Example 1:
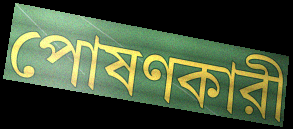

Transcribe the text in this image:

পোষণকারী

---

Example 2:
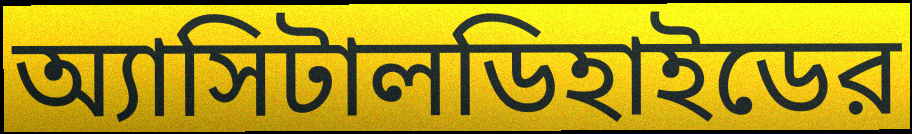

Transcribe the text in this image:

অ্যাসিটালডিহাইডের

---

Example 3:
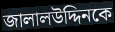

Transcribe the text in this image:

জালালউদ্দিনকে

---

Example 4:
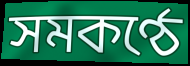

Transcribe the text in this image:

সমকণ্ঠে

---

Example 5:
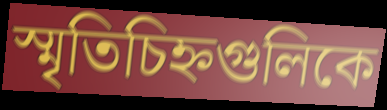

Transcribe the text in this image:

স্মৃতিচিহ্নগুলিকে